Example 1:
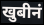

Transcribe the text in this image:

खुबीनं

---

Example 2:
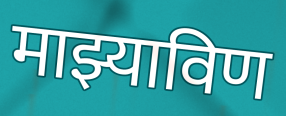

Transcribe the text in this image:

माझ्याविण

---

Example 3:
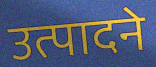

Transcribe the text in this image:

उत्पादने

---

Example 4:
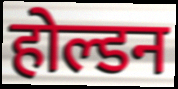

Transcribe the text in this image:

होल्डन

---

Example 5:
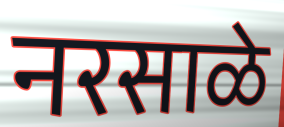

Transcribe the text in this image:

नरसाळे